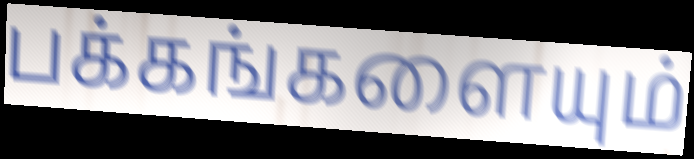
பக்கங்களையும்